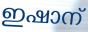
ഇഷാന്